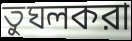
তুঘলকরা